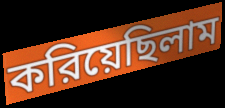
করিয়েছিলাম